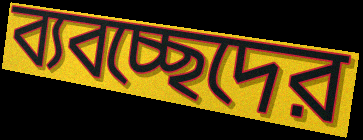
ব্যবচ্ছেদের